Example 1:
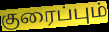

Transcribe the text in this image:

குரைப்பும்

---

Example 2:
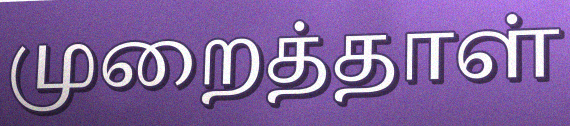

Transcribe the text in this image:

முறைத்தாள்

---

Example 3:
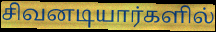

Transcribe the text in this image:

சிவனடியார்களில்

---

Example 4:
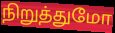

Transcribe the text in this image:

நிறுத்துமோ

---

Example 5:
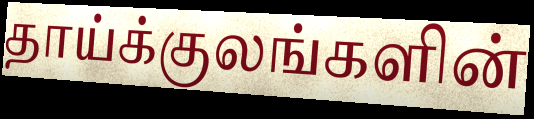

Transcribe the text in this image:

தாய்க்குலங்களின்